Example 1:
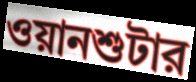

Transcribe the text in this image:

ওয়ানশুটার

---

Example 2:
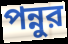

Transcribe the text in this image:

পন্নুর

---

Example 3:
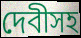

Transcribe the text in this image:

দেবীসহ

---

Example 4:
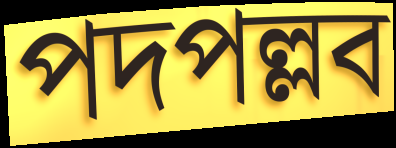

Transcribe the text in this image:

পদপল্লব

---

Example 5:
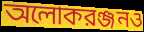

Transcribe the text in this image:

অলোকরঞ্জনও